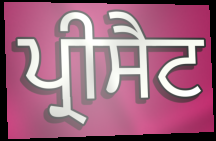
ਪ੍ਰੀਸੈਟ